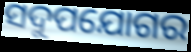
ସଦୁପଯୋଗର